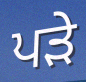
ਪੜੇ